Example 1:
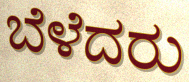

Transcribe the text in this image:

ಬೆಳೆದರು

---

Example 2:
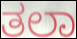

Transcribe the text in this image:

ತಲಾ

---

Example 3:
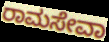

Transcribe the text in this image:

ರಾಮಸೇವಾ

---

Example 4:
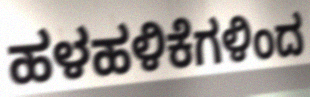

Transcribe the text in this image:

ಹಳಹಳಿಕೆಗಳಿಂದ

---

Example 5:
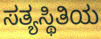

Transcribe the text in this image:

ಸತ್ಯಸ್ಥಿತಿಯ